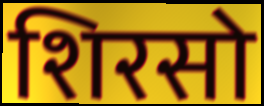
शिरसो